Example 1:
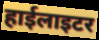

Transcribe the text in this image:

हाईलाइटर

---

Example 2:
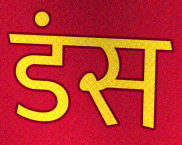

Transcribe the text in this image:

डंस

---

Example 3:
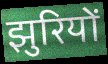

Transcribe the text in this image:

झुरियों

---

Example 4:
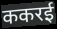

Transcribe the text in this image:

ककरई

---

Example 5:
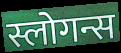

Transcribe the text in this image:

स्लोगन्स